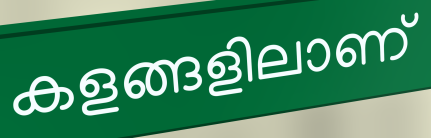
കളങ്ങളിലാണ്